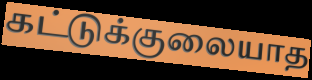
கட்டுக்குலையாத